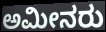
ಅಮೀನರು